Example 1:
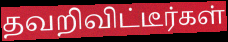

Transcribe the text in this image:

தவறிவிட்டீர்கள்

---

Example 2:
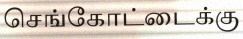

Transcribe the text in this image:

செங்கோட்டைக்கு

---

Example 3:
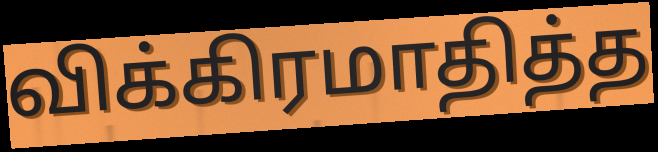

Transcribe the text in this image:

விக்கிரமாதித்த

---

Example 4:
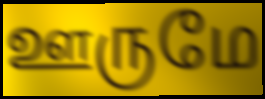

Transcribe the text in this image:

ஊருமே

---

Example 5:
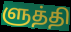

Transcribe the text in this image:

ளுத்தி